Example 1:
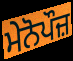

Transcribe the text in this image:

ਮੇਨੋਪੌਜ਼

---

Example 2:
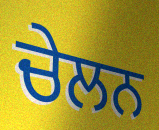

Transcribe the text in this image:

ਚੇਲਨ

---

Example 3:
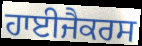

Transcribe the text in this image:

ਹਾਈਜੈਕਰਸ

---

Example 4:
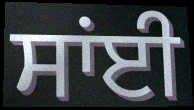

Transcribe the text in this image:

ਸਾਂਈ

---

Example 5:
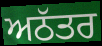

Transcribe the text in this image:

ਅਠੱਤਰ